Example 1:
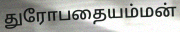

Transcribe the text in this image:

துரோபதையம்மன்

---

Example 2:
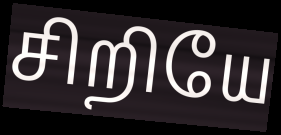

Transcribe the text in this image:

சிறியே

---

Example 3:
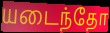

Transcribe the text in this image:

யடைந்தோ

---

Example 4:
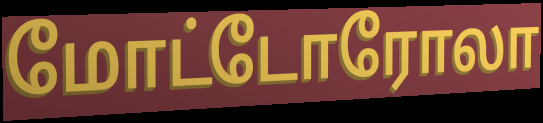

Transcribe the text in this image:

மோட்டோரோலா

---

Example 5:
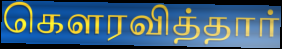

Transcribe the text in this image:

கௌரவித்தார்